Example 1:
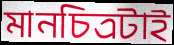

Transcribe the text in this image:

মানচিত্রটাই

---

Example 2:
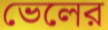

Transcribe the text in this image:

ভেলের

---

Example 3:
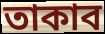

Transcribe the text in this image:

তাকাব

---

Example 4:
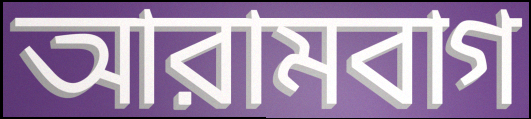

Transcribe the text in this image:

আরামবাগ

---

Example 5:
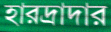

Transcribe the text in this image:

হারদ্রাদার